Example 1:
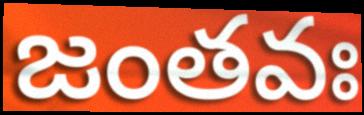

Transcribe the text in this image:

జంతవః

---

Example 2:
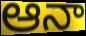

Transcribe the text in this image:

ఆనా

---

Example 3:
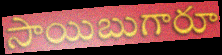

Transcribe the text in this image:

సాయిబుగారూ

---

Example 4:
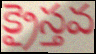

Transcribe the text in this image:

క్రైస్తవ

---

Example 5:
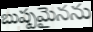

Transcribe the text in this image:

బుష్పమైనను